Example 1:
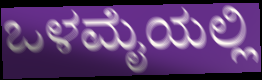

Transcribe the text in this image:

ಒಳಮೈಯಲ್ಲಿ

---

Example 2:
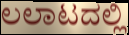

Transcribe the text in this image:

ಲಲಾಟದಲ್ಲಿ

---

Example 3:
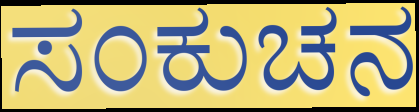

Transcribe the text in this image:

ಸಂಕುಚನ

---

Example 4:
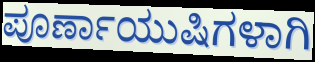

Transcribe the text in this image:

ಪೂರ್ಣಾಯುಷಿಗಳಾಗಿ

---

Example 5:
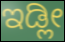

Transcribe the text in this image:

ಇಡ್ಲೀ